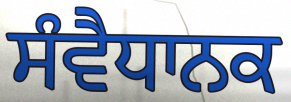
ਸੰਵੈਧਾਨਕ